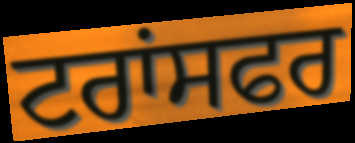
ਟਰਾਂਸਫਰ